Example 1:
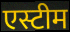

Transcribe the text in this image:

एस्टीम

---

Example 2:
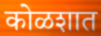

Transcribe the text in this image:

कोळशात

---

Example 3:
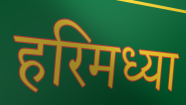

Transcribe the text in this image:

हरिमध्या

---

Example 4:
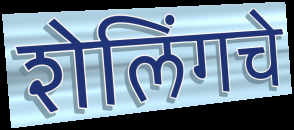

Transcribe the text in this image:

शेलिंगचे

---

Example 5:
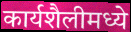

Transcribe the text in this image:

कार्यशैलीमध्ये